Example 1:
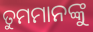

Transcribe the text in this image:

ତୁମମାନଙ୍କୁ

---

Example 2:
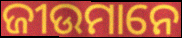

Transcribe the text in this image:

ଜୀଉମାନେ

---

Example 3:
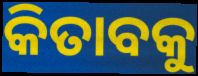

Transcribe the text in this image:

କିତାବକୁ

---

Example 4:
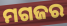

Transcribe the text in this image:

ମଗଜର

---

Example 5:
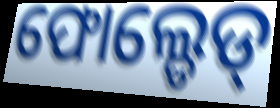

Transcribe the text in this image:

ଫୋଲ୍ଡେଡ୍